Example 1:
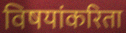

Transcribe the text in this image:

विषयांकरिता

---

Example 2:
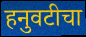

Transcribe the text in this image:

हनुवटीचा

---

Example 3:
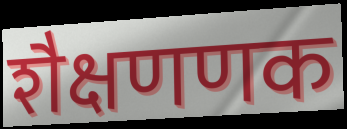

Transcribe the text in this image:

शैक्षणणक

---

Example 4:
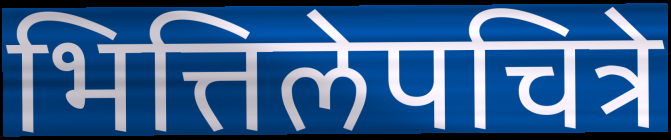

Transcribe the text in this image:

भित्तिलेपचित्रे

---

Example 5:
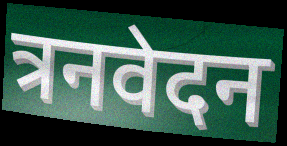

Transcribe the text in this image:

त्रनवेदन